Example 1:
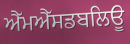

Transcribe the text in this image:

ਐੱਮਐੱਸਡਬਲਿਊ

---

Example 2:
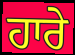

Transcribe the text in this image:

ਹਾਰੇ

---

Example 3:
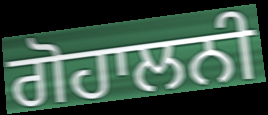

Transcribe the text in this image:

ਗੋਹਾਲਨੀ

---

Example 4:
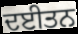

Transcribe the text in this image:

ਦਈਤਨ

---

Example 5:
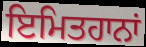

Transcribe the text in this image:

ਇਮਿਤਹਾਨਾਂ